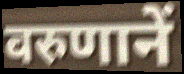
वरुणानें